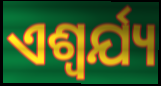
ଏଶ୍ଵର୍ଯ୍ୟ